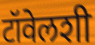
टॉवेलशी